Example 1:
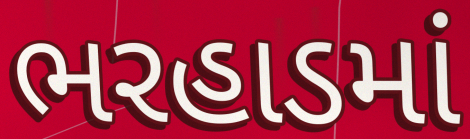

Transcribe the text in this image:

ભરહાડમાં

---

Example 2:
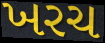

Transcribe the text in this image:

ખરચ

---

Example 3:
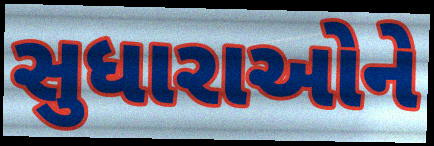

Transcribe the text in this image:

સુધારાઓને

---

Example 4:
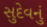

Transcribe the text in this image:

સુદેવનું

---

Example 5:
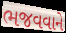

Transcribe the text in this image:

ભજવવાને